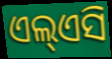
ଏଲ୍ଏସି